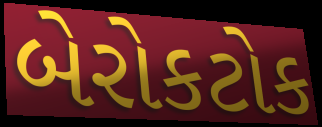
બેરોકટોક